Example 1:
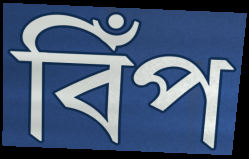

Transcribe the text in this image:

বিঁপ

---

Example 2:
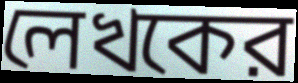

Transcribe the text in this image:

লেখকের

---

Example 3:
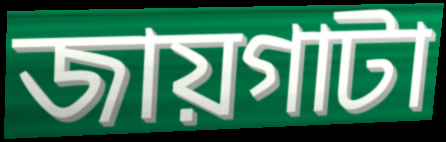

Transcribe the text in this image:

জায়গাটা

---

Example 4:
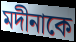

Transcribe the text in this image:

মদীনাকে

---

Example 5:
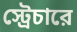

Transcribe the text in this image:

স্ট্রেচারে